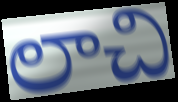
లాచి